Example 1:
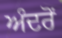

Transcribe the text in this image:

ਅੰਦਰੋਂ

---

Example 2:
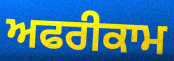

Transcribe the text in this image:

ਅਫਰੀਕਾਮ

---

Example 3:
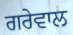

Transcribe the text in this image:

ਗਰੇਵਾਲ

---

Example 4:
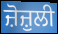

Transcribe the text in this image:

ਜ਼ੋਜ਼ੁਲੀ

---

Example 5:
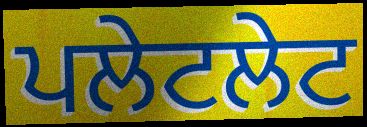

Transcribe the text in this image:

ਪਲੇਟਲੇਟ